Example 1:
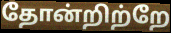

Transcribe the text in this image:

தோன்றிற்றே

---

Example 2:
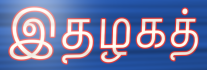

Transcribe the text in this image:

இதழகத்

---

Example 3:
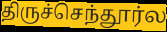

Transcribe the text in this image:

திருச்செந்தூர்ல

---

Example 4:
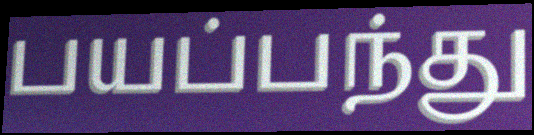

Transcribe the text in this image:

பயப்பந்து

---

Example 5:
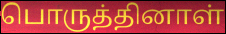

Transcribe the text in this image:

பொருத்தினாள்